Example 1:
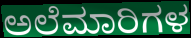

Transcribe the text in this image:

ಅಲೆಮಾರಿಗಳ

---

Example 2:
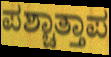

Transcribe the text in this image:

ಪಶ್ಚಾತ್ತಾಪ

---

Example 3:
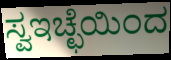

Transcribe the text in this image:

ಸ್ವಇಚ್ಛೆಯಿಂದ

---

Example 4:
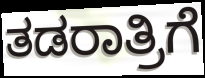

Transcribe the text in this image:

ತಡರಾತ್ರಿಗೆ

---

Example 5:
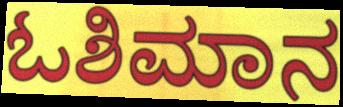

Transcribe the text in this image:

ಓಶಿಮಾನ